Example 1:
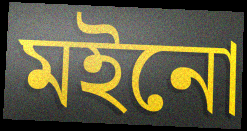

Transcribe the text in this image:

মইনো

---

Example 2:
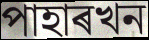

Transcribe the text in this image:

পাহাৰখন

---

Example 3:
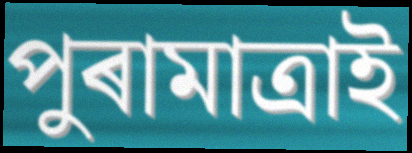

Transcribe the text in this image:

পুৰামাত্ৰাই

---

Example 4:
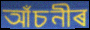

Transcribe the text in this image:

আঁচনীৰ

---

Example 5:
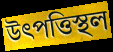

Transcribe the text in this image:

উৎপত্তিস্থল